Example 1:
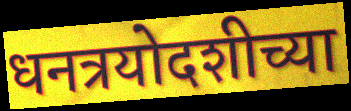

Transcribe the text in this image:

धनत्रयोदशीच्या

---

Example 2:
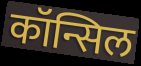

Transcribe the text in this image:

कॉन्सिल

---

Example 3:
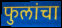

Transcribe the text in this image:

फुलांचा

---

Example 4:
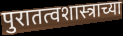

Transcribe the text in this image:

पुरातत्वशास्त्राच्या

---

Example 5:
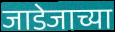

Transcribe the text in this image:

जाडेजाच्या